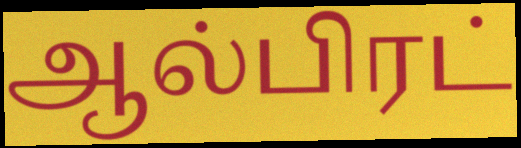
ஆல்பிரட்